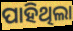
ପାହିଥିଲା